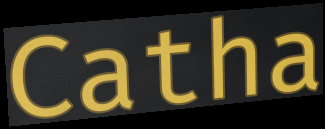
Catha